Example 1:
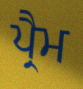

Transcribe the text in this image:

ਪ੍ਰੈਮ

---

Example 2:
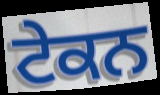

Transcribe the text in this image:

ਟੇਕਨ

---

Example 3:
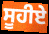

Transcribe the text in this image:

ਸੂਹੀਏ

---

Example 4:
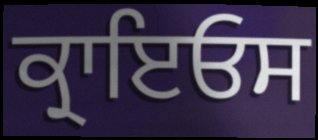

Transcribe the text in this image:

ਕ੍ਰਾਇਓਸ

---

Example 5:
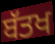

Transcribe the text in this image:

ਬੱਤਖ